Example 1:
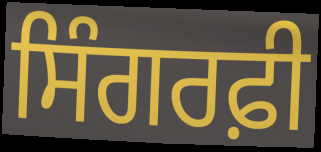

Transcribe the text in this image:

ਸਿੰਗਰਫ਼ੀ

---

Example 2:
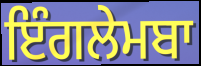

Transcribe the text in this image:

ਇੰਗਲੇਮਬਾ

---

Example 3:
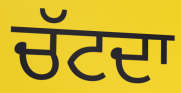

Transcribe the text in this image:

ਚੱਟਦਾ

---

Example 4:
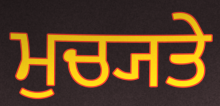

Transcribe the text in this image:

ਮੁਚ੍ਯਤੇ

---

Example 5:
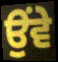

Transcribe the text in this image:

ਉੰਵੇ